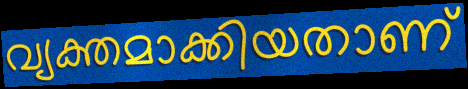
വ്യക്തമാക്കിയതാണ്